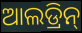
ଆଲଡ୍ରିନ୍